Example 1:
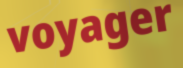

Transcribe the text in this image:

voyager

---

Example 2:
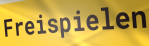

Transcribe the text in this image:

Freispielen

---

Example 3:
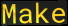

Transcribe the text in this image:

Make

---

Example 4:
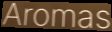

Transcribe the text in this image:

Aromas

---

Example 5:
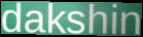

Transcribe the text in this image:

dakshin